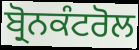
ਬ੍ਰੋਨਕੰਟਰੋਲ